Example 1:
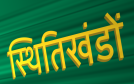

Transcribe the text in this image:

स्थितिखंडों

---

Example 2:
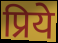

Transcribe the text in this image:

प्रिये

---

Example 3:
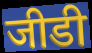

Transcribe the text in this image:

जीडी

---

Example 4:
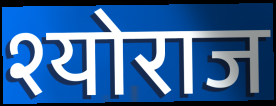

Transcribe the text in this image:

श्योराज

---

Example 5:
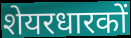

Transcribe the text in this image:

शेयरधारकों